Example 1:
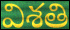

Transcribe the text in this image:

విశతి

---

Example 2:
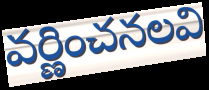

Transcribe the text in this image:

వర్ణించనలవి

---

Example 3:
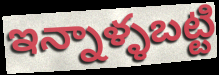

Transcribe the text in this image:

ఇన్నాళ్ళబట్టి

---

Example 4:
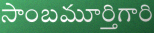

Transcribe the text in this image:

సాంబమూర్తిగారి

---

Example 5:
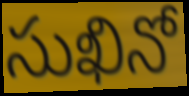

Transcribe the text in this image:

సుఖినో